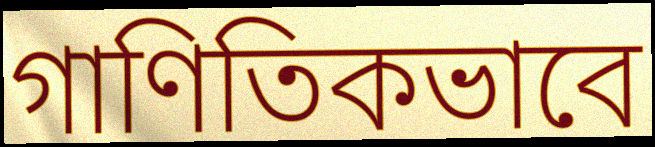
গাণিতিকভাবে